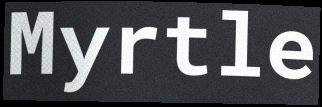
Myrtle